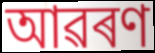
আৱৰণ